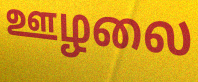
ஊழலை